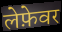
लेफ़ेवर